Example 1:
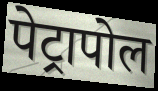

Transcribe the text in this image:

पेट्रापोल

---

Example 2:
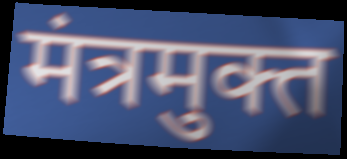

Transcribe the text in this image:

मंत्रमुक्त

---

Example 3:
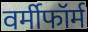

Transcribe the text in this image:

वर्मीफॉर्म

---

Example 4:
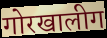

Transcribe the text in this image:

गोरखालीग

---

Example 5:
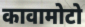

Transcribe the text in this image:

कावामोटो